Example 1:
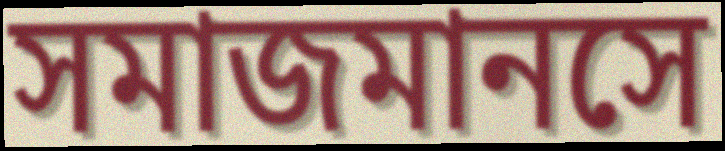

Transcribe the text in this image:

সমাজমানসে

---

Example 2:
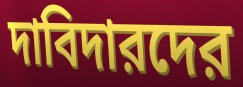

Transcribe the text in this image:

দাবিদারদের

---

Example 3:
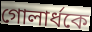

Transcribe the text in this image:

গোলার্ধকে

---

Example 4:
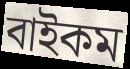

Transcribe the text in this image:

বাইকম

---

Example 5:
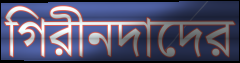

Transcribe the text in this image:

গিরীনদাদের